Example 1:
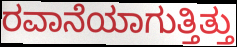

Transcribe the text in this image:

ರವಾನೆಯಾಗುತ್ತಿತ್ತು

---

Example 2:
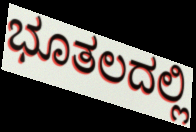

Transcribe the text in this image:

ಭೂತಲದಲ್ಲಿ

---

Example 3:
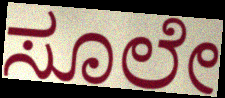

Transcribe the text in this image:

ಸೂಲೇ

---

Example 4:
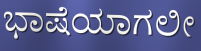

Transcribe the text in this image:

ಭಾಷೆಯಾಗಲೀ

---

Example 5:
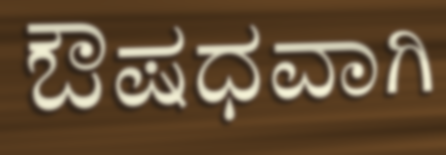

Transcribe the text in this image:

ಔಷಧವಾಗಿ